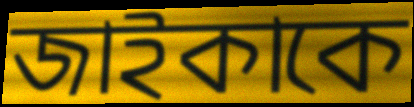
জাইকাকে